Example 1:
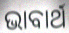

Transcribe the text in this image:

ଭାବାର୍ଥ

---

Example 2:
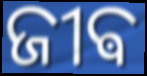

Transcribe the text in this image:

ଜୀଵ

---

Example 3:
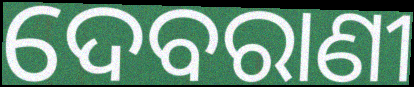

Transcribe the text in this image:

ଦେବରାଣୀ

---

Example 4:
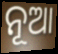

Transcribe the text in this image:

ନୂଆ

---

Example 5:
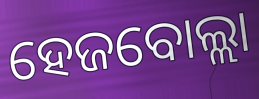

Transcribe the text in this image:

ହେଜବୋଲ୍ଲା